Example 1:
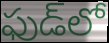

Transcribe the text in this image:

ఫుడ్‌లో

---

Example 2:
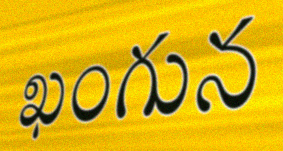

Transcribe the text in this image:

ఖంగున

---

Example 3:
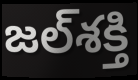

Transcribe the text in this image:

జల్‌శక్తి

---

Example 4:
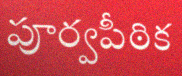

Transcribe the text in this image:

పూర్వపీఠిక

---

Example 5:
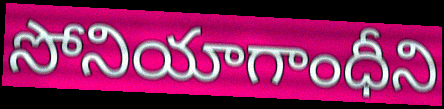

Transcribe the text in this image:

సోనియాగాంధీని